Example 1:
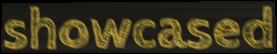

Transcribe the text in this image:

showcased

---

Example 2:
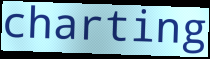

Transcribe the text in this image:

charting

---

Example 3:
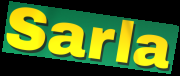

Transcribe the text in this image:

Sarla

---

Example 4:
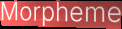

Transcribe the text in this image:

Morpheme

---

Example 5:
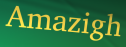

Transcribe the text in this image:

Amazigh